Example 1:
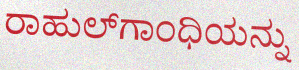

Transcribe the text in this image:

ರಾಹುಲ್‌ಗಾಂಧಿಯನ್ನು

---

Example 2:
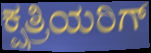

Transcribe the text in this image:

ಕ್ಷತ್ರಿಯರಿಗ್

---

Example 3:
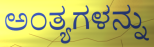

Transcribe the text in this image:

ಅಂತ್ಯಗಳನ್ನು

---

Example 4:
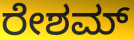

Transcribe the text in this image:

ರೇಶಮ್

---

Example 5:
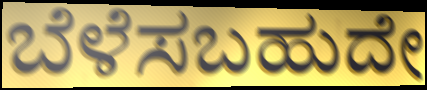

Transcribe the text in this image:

ಬೆಳೆಸಬಹುದೇ